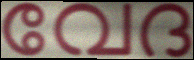
വേദ